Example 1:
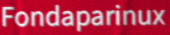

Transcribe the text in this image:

Fondaparinux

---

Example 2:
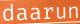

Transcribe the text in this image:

daarun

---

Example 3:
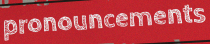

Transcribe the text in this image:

pronouncements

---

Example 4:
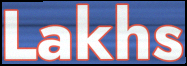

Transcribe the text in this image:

Lakhs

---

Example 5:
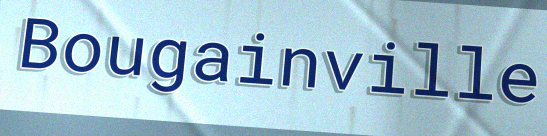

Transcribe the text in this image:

Bougainville